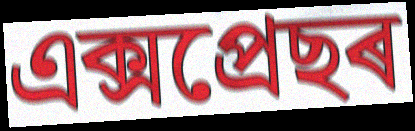
এক্সপ্ৰেছৰ